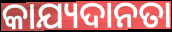
କାଯ୍ୟଦାନତା